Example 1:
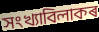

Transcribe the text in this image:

সংখ্যাবিলাকৰ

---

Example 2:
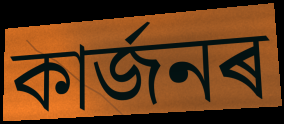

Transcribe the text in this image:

কাৰ্জনৰ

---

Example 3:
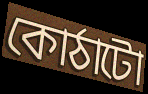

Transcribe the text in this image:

কোঠাটো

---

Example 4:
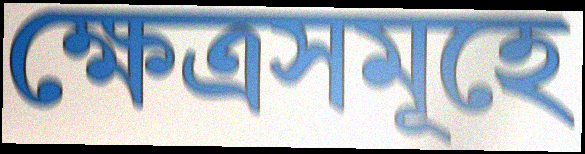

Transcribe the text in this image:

ক্ষেত্ৰসমূহে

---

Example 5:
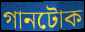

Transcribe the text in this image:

গানটোক